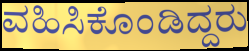
ವಹಿಸಿಕೊಂಡಿದ್ದರು